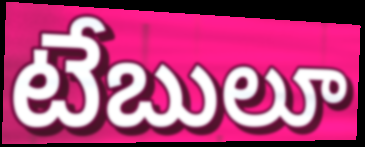
టేబులూ